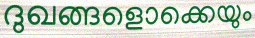
ദുഖങ്ങളൊക്കെയും